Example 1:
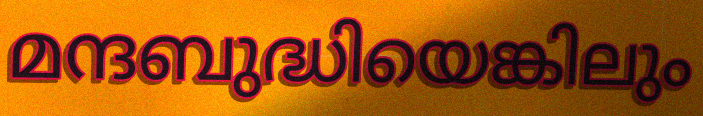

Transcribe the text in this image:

മന്ദബുദ്ധിയെങ്കിലും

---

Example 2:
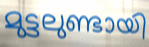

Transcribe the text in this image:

മുട്ടലുണ്ടായി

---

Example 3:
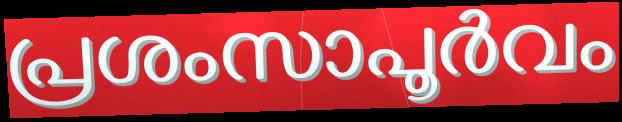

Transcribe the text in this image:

പ്രശംസാപൂർവം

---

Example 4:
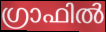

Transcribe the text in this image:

ഗ്രാഫിൽ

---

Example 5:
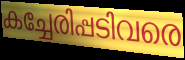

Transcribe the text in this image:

കച്ചേരിപ്പടിവരെ